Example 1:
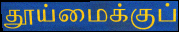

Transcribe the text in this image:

தூய்மைக்குப்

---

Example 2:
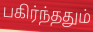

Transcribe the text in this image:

பகிர்ந்ததும்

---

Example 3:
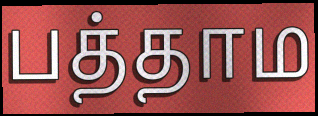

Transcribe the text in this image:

பத்தாம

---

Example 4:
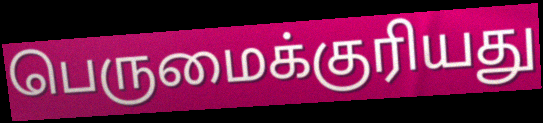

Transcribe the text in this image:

பெருமைக்குரியது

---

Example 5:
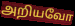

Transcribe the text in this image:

அறியவோ